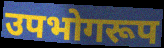
उपभोगरूप